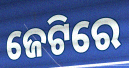
ଜେଟିରେ